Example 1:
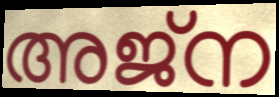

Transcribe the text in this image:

അജ്ന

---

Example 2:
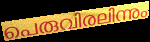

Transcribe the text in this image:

പെരുവിരലിന്നും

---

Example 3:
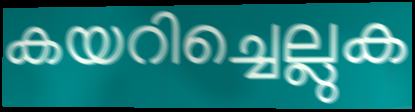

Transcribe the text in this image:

കയറിച്ചെല്ലുക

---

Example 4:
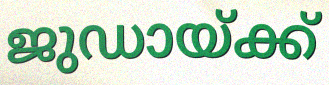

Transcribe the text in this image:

ജുഡായ്ക്ക്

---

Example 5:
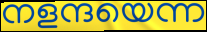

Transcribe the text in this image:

നളന്ദയെന്ന